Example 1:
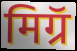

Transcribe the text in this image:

मिग्रॅ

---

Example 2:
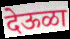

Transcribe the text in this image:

देऊळा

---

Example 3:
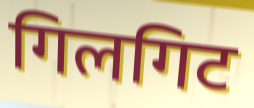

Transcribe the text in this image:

गिलगिट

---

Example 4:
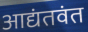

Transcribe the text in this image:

आद्यंतवंत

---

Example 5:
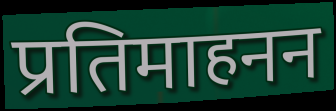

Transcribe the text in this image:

प्रतिमाहनन